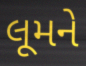
લૂમને